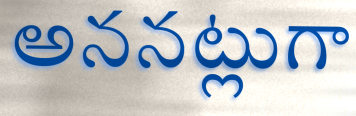
అననట్లుగా